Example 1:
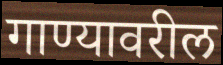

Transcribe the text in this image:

गाण्यावरील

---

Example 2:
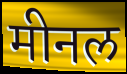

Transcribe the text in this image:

मीनल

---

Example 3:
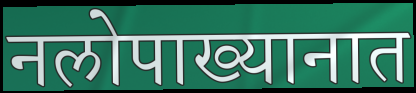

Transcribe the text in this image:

नलोपाख्यानात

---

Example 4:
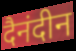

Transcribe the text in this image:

दैनंदीन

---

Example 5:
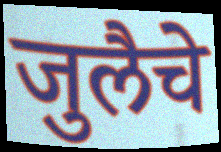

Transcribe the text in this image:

जुलैचे